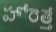
హోరెత్తే